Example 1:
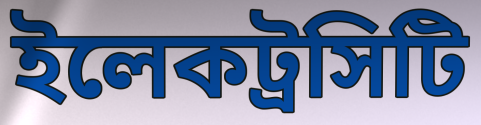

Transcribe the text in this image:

ইলেকট্রসিটি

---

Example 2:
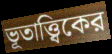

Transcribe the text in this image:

ভূতাত্ত্বিকের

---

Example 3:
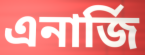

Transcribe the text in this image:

এনার্জি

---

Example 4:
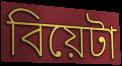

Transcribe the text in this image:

বিয়েটা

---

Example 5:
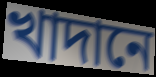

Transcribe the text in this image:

খাদানে